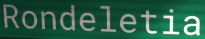
Rondeletia